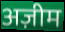
अज़ीम